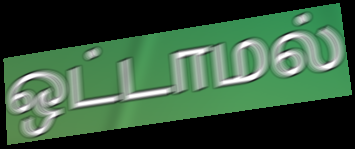
ஒட்டாமல்